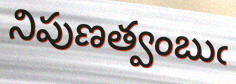
నిపుణత్వంబుఁ